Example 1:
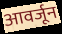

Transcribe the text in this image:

आवर्जून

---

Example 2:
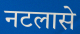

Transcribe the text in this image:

नटलासे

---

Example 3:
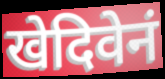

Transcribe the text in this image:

खेदिवेनं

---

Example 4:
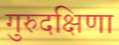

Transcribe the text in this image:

गुरुदक्षिणा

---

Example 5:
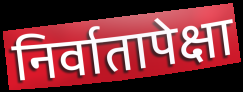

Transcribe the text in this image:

निर्वातापेक्षा